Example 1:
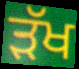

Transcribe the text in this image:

ੜੱਖ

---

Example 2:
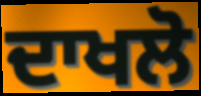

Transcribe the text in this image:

ਦਾਖਲੋ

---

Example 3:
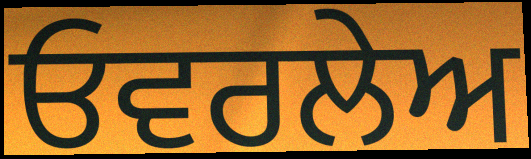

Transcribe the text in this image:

ਓਵਰਲੇਅ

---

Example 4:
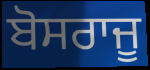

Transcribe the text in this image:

ਬੋਸਰਾਜੂ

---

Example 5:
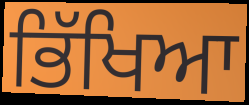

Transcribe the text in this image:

ਭਿੱਖਿਆ